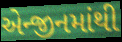
એન્જીનમાંથી